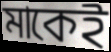
মাকেই